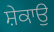
ਸ਼ੇਕਾਉ